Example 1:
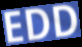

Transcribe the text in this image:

EDD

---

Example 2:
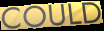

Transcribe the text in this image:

COULD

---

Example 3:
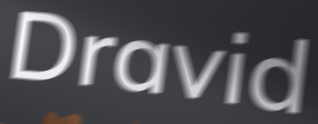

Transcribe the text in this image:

Dravid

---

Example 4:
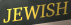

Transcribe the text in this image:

JEWISH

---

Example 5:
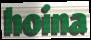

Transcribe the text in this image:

hoina